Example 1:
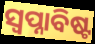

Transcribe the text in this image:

ସ୍ୱପ୍ନାବିଷ୍ଟ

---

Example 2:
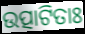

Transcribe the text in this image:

ଉତ୍ପାଟିତାଃ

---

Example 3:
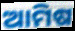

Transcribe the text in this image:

ଆମିଷ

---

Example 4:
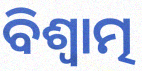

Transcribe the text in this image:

ବିଶ୍ୱାତ୍ମ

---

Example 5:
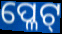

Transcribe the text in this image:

ପ୍ଳେଟ୍